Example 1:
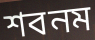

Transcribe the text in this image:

শবনম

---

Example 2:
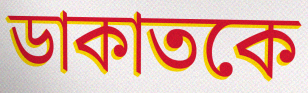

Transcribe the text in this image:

ডাকাতকে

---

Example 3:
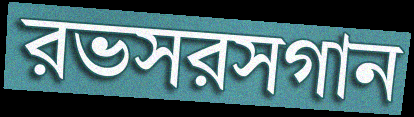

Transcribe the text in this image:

রভসরসগান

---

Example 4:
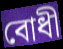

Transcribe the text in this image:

বোধী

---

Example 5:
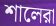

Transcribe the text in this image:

শালেরা